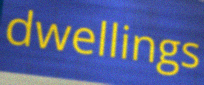
dwellings